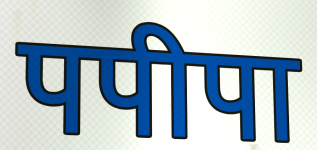
पपीपा